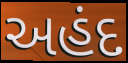
અહંદ